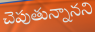
చెపుతున్నానని